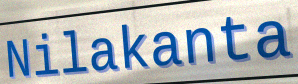
Nilakanta